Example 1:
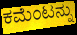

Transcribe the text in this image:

ಕಮೆಂಟನ್ನು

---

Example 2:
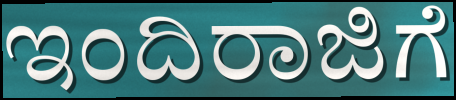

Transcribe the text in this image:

ಇಂದಿರಾಜಿಗೆ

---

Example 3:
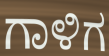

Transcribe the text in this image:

ಗಾಳಿಗ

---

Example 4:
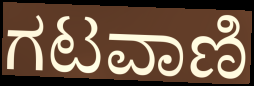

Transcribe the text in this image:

ಗಟವಾಣಿ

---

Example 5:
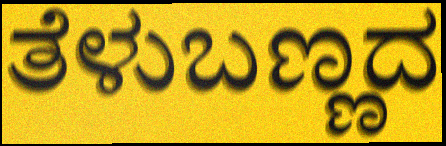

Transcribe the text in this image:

ತೆಳುಬಣ್ಣದ